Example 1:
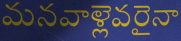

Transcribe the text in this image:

మనవాళ్లెవరైనా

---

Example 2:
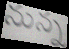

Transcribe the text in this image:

నున్న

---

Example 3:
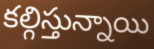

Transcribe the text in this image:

కల్గిస్తున్నాయి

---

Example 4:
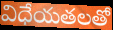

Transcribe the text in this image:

విధేయతలతో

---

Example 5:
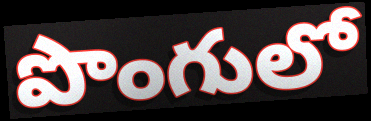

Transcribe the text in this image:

పొంగులో